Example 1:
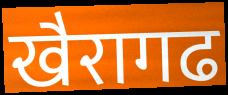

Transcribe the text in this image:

खैरागढ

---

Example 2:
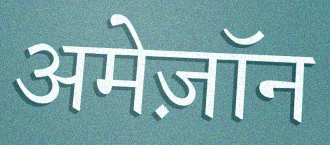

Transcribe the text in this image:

अमेज़ॉन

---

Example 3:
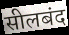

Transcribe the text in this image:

सीलबंद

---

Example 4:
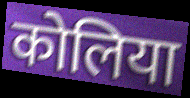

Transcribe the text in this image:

कोलिया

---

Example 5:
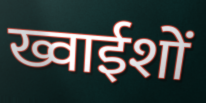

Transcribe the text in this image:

ख्वाईशों